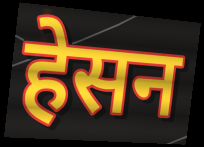
हेसन